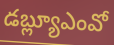
డబ్ల్యూఎంవో